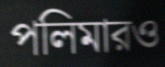
পলিমারও